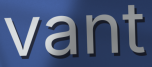
vant